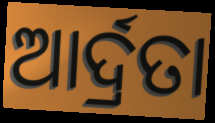
ଆର୍ଦ୍ରତା